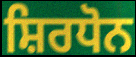
ਸ਼ਿਰਧੋਨ